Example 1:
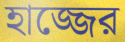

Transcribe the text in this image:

হাজ্জের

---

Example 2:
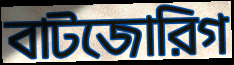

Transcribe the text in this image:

বাটজোরিগ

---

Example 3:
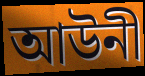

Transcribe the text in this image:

আউনী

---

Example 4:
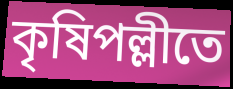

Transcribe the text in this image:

কৃষিপল্লীতে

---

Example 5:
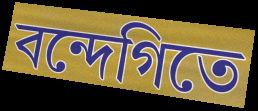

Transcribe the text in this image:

বন্দেগিতে